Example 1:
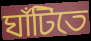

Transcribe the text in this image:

ঘাঁটিতে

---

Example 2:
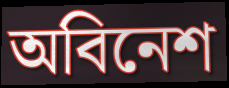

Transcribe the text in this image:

অবিনেশ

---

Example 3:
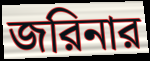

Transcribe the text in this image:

জরিনার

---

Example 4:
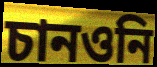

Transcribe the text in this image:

চানওনি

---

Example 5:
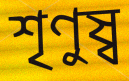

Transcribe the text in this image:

শৃণুষ্ব